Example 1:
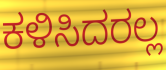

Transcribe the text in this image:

ಕಳಿಸಿದರಲ್ಲ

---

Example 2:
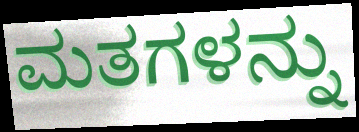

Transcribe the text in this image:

ಮತಗಳನ್ನು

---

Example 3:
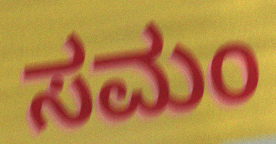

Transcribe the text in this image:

ಸಮಂ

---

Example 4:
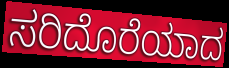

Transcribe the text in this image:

ಸರಿದೊರೆಯಾದ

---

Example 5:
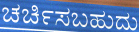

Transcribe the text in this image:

ಚರ್ಚಿಸಬಹುದು